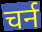
चर्न